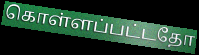
கொள்ளப்பட்டதோ